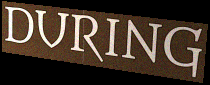
DURING